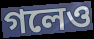
গলেও